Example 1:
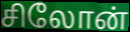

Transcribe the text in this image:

சிலோன்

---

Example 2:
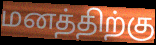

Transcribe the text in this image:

மனத்திற்கு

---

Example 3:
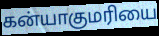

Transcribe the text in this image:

கன்யாகுமரியை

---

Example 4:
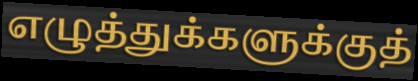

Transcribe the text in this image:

எழுத்துக்களுக்குத்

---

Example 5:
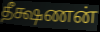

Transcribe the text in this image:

தீக்ஷணன்